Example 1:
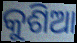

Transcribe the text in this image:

କୁଶିଆ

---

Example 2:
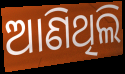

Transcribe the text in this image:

ଆଣିଥିଲି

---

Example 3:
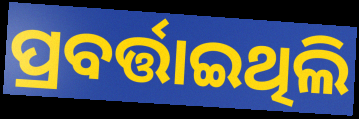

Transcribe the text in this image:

ପ୍ରବର୍ତ୍ତାଇଥିଲି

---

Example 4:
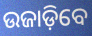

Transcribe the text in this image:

ଉଜାଡ଼ିବେ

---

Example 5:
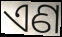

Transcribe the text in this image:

ଏଣ